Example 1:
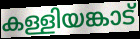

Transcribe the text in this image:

കള്ളിയങ്കാട്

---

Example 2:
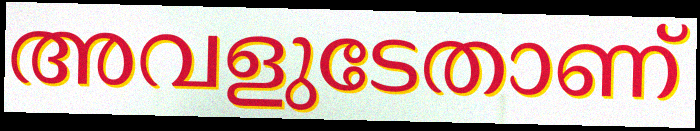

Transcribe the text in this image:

അവളുടേതാണ്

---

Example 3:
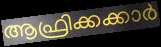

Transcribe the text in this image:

ആഫ്രിക്കക്കാർ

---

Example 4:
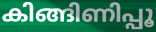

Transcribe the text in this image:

കിങ്ങിണിപ്പൂ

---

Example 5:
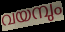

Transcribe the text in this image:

വയമ്പും